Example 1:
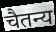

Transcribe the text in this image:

चैतन्य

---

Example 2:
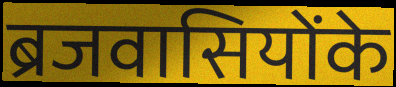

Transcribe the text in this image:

ब्रजवासियोंके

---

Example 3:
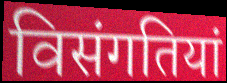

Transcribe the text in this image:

विसंगतियां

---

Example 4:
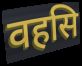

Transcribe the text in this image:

वहसि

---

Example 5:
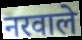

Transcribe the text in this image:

नरवाले